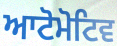
ਆਟੋਮੋਟਿਵ